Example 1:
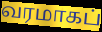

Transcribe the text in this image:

வரமாகப்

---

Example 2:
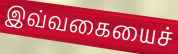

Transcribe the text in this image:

இவ்வகையைச்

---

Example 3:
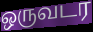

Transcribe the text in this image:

ஒருவடர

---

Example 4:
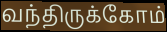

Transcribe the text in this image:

வந்திருக்கோம்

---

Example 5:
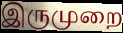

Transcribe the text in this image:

இருமுறை